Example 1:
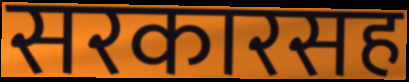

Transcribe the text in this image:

सरकारसह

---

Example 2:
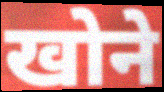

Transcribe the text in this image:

खोने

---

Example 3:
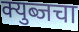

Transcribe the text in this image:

क्युब्जचा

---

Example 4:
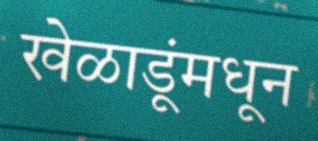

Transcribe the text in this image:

खेळाडूंमधून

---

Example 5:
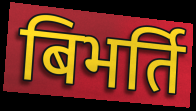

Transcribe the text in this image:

बिभर्ति